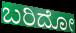
ಬರಿದೋ